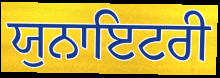
ਯੁਨਾਇਟਰੀ